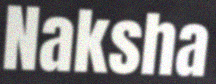
Naksha